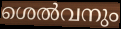
ശെൽവനും